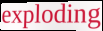
exploding